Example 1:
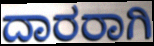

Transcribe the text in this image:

ದಾರರಾಗಿ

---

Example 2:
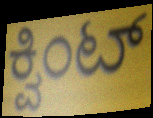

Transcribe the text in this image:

ಕ್ವಿಂಟ್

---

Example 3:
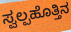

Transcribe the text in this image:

ಸ್ವಲ್ಪಹೊತ್ತಿನ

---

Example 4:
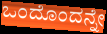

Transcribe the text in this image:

ಒಂದೊಂದನ್ನೇ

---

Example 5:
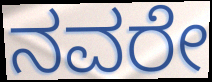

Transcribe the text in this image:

ನವರೇ